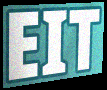
EIT